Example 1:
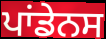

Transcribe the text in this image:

ਪਾਂਡੇਨਸ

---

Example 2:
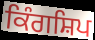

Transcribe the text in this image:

ਕਿੰਗਸ਼ਿਪ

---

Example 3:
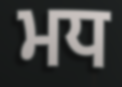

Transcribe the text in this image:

ਮਧ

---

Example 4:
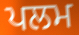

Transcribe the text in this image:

ਪਲਮ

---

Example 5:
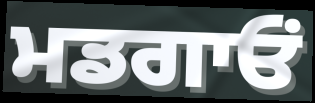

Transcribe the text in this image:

ਮਡਗਾਓਂ